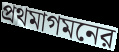
প্রথমাগমনের